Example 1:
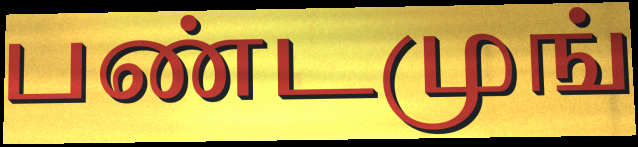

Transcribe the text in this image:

பண்டமுங்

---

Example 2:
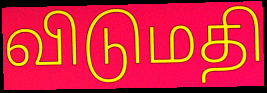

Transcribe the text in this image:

விடுமதி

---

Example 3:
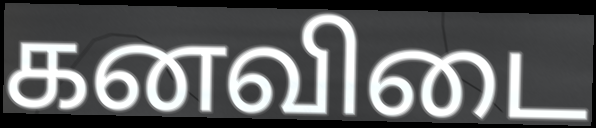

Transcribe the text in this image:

கனவிடை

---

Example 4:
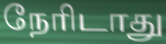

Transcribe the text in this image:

நேரிடாது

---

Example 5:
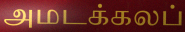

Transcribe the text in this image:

அமடக்கலப்